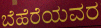
ಬೆಹೆರೆಯವರ